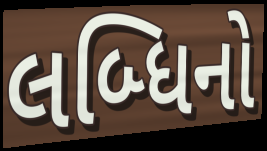
લબ્ધિનો